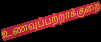
உணவுப்பற்றாக்குறை